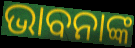
ଭାବନାଙ୍କ